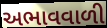
અભાવવાળી